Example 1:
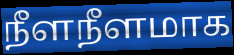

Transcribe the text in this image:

நீளநீளமாக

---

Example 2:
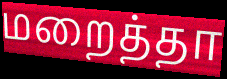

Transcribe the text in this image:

மறைத்தா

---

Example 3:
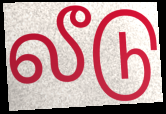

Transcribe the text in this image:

லீடு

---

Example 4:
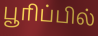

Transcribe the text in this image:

பூரிப்பில்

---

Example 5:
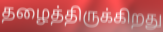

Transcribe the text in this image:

தழைத்திருக்கிறது